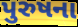
પુરુષના